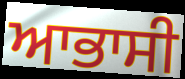
ਆਭਾਸੀ